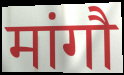
मांगौ